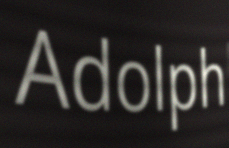
Adolph